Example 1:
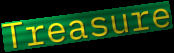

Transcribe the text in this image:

Treasure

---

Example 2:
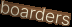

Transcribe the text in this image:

boarders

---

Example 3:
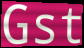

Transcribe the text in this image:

Gst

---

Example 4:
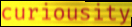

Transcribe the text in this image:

curiousity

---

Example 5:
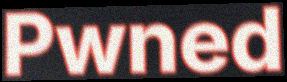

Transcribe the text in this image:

Pwned